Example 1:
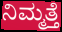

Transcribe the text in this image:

ನಿಮ್ಮತ್ತೆ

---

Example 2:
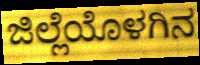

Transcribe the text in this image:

ಜಿಲ್ಲೆಯೊಳಗಿನ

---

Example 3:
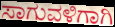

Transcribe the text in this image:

ಸಾಗುವಳಿಗಾಗಿ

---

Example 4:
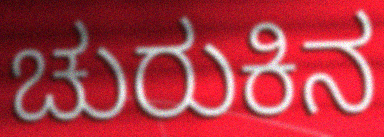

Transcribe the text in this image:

ಚುರುಕಿನ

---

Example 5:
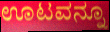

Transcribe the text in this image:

ಊಟವನ್ನೂ